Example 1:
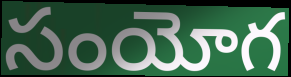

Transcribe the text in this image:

సంయోగ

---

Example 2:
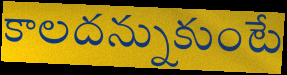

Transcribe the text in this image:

కాలదన్నుకుంటే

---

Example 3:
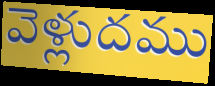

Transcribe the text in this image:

వెళ్లుదము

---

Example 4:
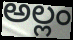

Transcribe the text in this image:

అల్లం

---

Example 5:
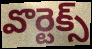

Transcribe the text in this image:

వొర్టెక్స్